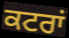
ਕਟਰਾਂ